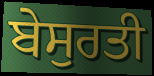
ਬੇਸੁਰਤੀ